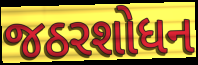
જઠરશોધન